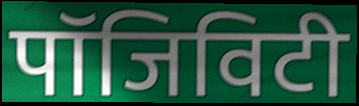
पॉजिविटी